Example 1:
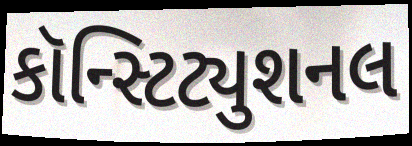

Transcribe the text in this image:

કૉન્સ્ટિટ્યુશનલ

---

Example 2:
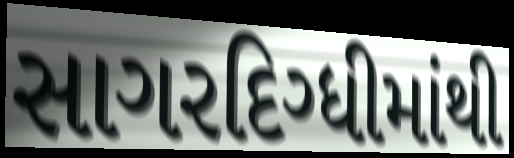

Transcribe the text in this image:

સાગરદિગ્ધીમાંથી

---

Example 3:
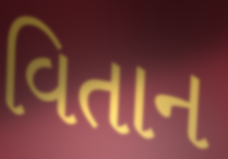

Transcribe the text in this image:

વિતાન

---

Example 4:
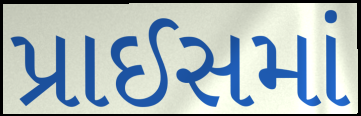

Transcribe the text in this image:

પ્રાઈસમાં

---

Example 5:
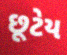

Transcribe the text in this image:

છૂટેય